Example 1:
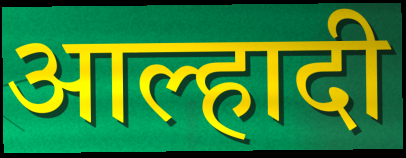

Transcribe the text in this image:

आल्हादी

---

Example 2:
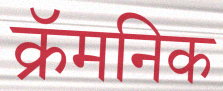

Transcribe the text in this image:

क्रॅमनिक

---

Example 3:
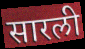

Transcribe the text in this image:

सारली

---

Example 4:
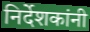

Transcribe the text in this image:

निर्देशकांनी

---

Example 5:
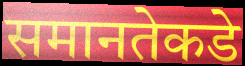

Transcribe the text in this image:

समानतेकडे